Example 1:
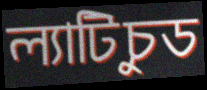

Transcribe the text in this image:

ল্যাটিচুড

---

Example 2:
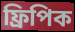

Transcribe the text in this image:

ফ্রিপিক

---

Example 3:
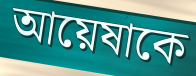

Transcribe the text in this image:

আয়েষাকে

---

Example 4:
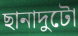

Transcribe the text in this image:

ছানাদুটো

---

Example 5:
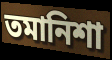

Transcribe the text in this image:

তমানিশা